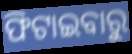
ଫିଟାଇବାରୁ